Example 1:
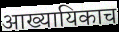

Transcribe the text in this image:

आख्यायिकाच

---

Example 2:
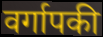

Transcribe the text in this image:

वर्गापकी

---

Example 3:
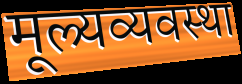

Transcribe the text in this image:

मूल्यव्यवस्था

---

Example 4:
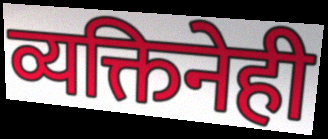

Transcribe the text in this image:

व्यक्तिनेही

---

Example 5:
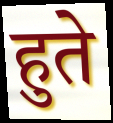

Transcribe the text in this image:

हुते